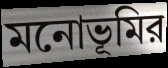
মনোভূমির